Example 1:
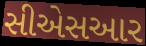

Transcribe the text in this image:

સીએસઆર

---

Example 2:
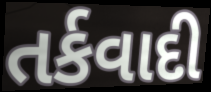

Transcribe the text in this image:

તર્કવાદી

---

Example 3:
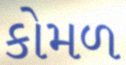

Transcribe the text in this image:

કોમળ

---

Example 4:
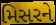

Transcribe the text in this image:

મિસરને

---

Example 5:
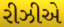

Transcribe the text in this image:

રીઝીએ